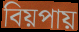
বিয়পায়